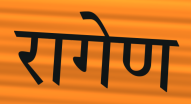
रागेण